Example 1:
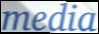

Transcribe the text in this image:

media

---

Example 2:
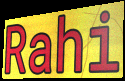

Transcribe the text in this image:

Rahi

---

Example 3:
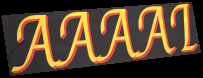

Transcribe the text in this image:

AAAAI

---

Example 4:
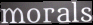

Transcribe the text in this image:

morals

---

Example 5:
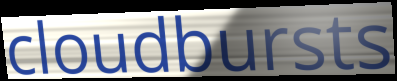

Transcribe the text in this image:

cloudbursts